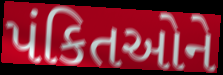
પંકિતઓને